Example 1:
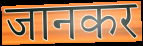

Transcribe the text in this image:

जानकर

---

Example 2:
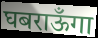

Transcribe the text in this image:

घबराऊँगा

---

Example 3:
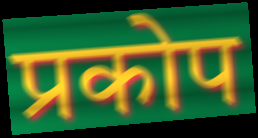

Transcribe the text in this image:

प्रकोप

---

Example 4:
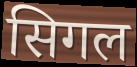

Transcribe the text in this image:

सिगल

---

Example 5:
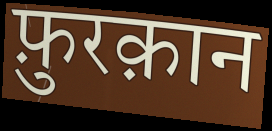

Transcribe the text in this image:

फ़ुरक़ान